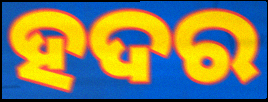
ହଦର